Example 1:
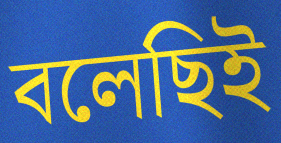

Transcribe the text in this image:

বলেছিই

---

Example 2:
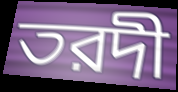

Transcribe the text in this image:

তরদী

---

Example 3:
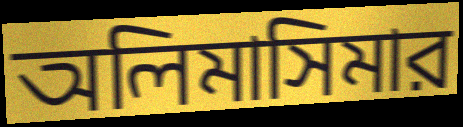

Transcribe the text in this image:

অলিমাসিমার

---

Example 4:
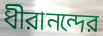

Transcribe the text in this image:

ধীরানন্দের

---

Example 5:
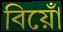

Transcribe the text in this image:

বিয়োঁ